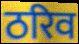
ठरिव